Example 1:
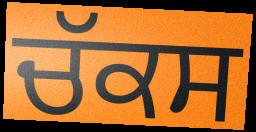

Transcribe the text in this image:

ਚੱਕਸ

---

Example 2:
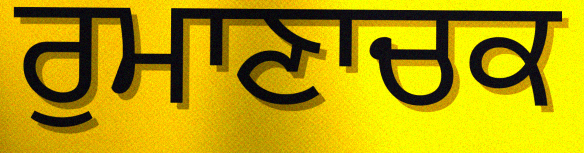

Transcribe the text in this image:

ਰੁਮਾਣਾਚਕ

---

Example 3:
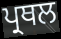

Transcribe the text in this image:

ਪ੍ਰਥਲ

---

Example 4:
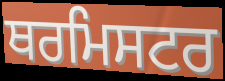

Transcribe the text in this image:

ਥਰਮਿਸਟਰ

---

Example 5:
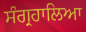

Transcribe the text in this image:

ਸੰਗ੍ਰਹਾਲਿਆ